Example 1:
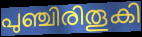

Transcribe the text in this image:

പുഞ്ചിരിതൂകി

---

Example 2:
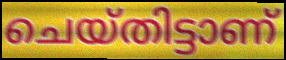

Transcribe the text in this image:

ചെയ്തിട്ടാണ്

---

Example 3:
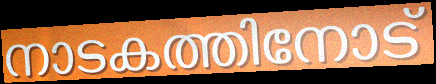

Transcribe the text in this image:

നാടകത്തിനോട്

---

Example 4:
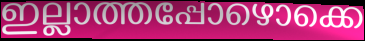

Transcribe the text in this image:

ഇല്ലാത്തപ്പോഴൊക്കെ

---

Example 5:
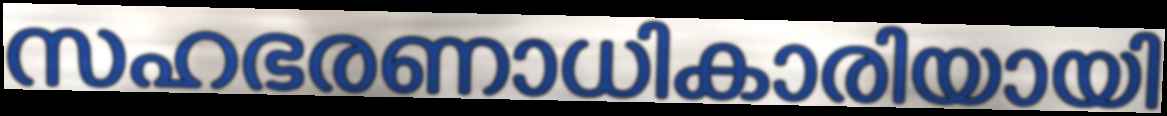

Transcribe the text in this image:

സഹഭരണാധികാരിയായി